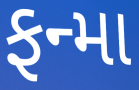
ફન્મા